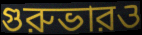
গুরুভারও